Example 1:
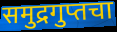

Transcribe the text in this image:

समुद्रगुप्तचा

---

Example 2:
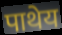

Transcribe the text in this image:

पाथेय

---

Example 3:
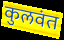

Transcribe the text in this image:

कुलवंत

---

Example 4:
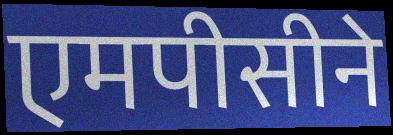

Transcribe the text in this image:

एमपीसीने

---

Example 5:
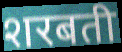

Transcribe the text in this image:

शरबती